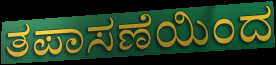
ತಪಾಸಣೆಯಿಂದ